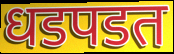
धडपडत